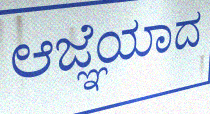
ಆಜ್ಞೆಯಾದ